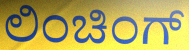
ಲಿಂಚಿಂಗ್